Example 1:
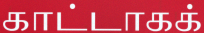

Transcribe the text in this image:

காட்டாகக்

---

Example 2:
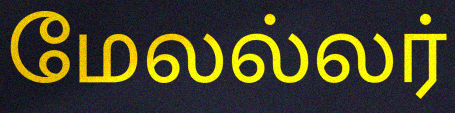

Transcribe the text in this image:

மேலல்லர்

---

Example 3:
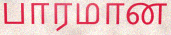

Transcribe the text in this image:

பாரமான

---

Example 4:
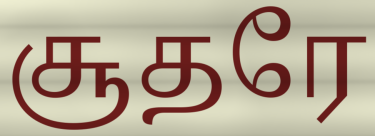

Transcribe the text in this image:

சூதரே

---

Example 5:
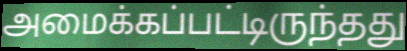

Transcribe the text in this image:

அமைக்கப்பட்டிருந்தது